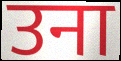
उना